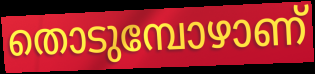
തൊടുമ്പോഴാണ്